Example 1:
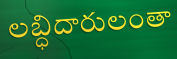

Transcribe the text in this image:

లబ్ధిదారులంతా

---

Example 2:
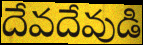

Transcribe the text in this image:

దేవదేవుడి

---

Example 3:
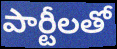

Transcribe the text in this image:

పార్టీలతో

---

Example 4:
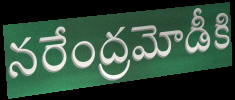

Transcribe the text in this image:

నరేంద్రమోడీకి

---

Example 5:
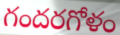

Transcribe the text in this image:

గందరగోళం